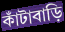
কাঁটাবাড়ি